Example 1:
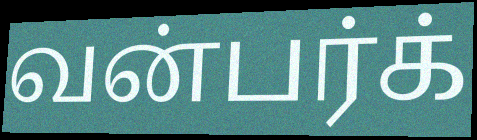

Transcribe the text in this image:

வன்பர்க்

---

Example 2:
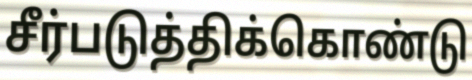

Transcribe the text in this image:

சீர்படுத்திக்கொண்டு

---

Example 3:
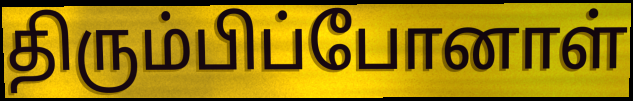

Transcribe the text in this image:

திரும்பிப்போனாள்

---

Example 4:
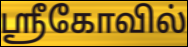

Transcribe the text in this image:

ஸ்ரீகோவில்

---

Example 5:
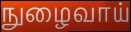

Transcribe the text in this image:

நுழைவாய்